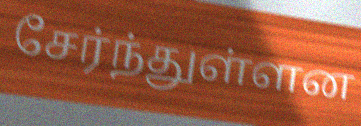
சேர்ந்துள்ளன